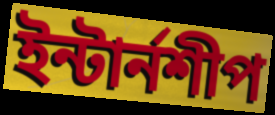
ইন্টার্নশীপ